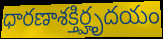
ధారణాశక్తిర్హృదయం